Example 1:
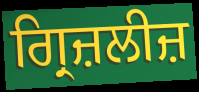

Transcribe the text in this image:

ਗ੍ਰਿਜ਼ਲੀਜ਼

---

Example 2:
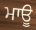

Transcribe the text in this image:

ਮਾਊ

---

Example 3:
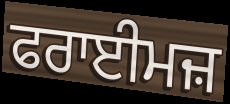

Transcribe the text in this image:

ਫਰਾਈਮਜ਼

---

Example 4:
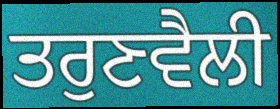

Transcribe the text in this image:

ਤਰੁਣਵੈਲੀ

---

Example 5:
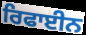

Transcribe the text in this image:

ਰਿਫਾਈਨ